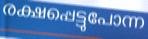
രക്ഷപ്പെട്ടുപോന്ന